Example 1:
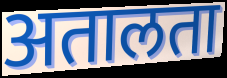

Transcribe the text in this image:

अतालता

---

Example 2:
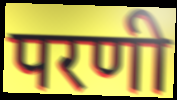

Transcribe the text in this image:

परणी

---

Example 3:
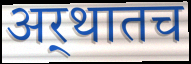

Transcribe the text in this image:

अर्थातच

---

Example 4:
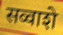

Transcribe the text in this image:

सव्वाशे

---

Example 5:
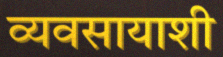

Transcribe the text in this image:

व्यवसायाशी